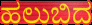
ಹಲುಬಿದ